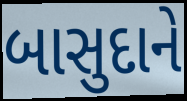
બાસુદાને